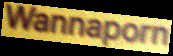
Wannaporn